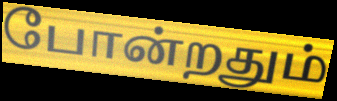
போன்றதும்